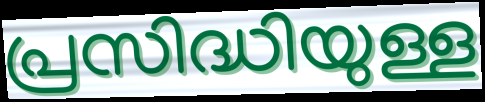
പ്രസിദ്ധിയുള്ള